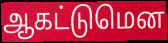
ஆகட்டுமென